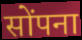
सोंपना